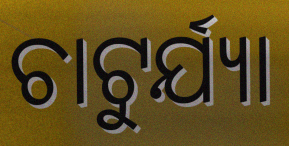
ଚାଟୁର୍ଯ୍ୟା